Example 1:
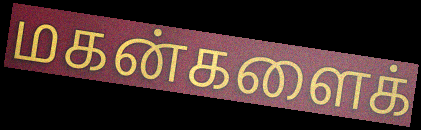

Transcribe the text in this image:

மகன்களைக்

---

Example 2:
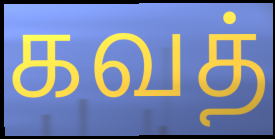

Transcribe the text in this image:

கவத்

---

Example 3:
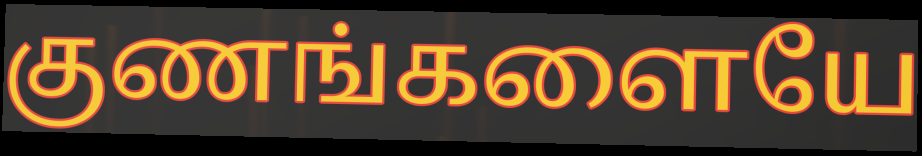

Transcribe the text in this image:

குணங்களையே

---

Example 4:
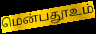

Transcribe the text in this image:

மென்பதூஉம்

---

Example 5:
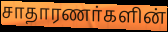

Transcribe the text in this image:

சாதாரணர்களின்